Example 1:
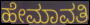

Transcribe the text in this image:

ಹೇಮಾವತಿ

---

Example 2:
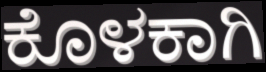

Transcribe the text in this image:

ಕೊಳಕಾಗಿ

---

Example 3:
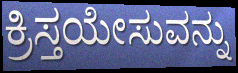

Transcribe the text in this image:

ಕ್ರಿಸ್ತಯೇಸುವನ್ನು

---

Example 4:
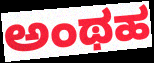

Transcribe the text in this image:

ಅಂಥಹ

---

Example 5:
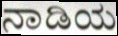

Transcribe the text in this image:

ನಾಡಿಯ